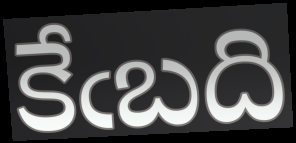
కేఁబది